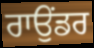
ਰਾਉਂਡਰ